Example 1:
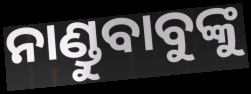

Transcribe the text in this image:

ନାଣ୍ଡୁବାବୁଙ୍କୁ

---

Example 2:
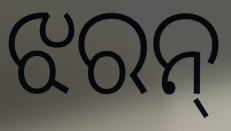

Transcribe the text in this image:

ଝରନ୍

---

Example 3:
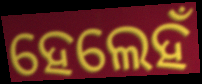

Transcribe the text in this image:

ହେଲେହଁ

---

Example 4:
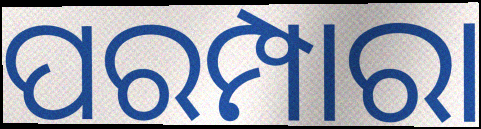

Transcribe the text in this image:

ପରମ୍ପାରା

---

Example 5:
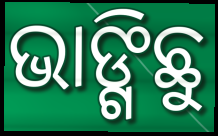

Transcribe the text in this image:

ଭାଙ୍ଗିଛୁ